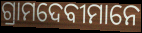
ଗ୍ରାମଦେବୀମାନେ